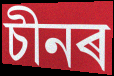
চীনৰ